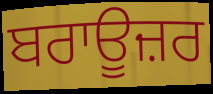
ਬਰਾਊਜ਼ਰ